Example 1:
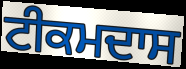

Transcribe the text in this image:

ਟੀਕਮਦਾਸ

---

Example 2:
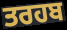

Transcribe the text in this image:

ਤਰਹਬ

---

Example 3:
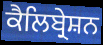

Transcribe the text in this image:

ਕੈਲਿਬ੍ਰੇਸ਼ਨ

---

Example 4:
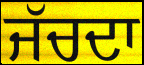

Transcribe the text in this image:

ਜੱਚਦਾ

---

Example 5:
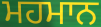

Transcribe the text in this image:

ਮਹਮਾਨ